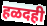
हळदही